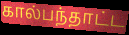
கால்பந்தாட்ட